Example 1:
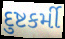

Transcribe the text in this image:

દુષ્ટકર્મી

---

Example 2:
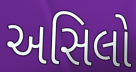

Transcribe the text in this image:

અસિલો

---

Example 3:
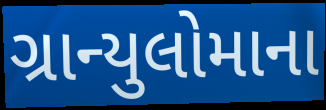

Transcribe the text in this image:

ગ્રાન્યુલોમાના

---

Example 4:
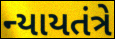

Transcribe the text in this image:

ન્યાયતંત્રે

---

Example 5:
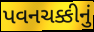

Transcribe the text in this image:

પવનચક્કીનું